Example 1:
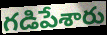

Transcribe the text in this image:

గడిపేశారు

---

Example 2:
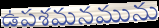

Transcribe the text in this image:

ఉపశమనమును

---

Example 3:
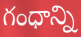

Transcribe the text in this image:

గంధాన్ని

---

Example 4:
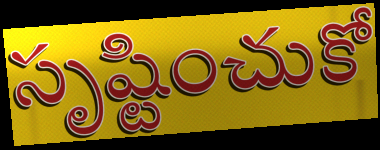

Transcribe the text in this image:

సృష్టించుకో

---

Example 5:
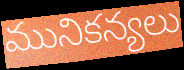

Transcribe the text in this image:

మునికన్యలు